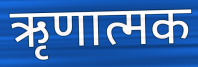
ऋृणात्मक